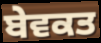
ਬੇਵਕਤ